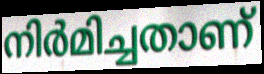
നിർമിച്ചതാണ്